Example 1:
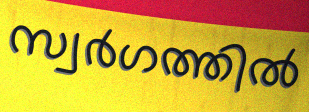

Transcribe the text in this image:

സ്വർഗത്തിൽ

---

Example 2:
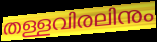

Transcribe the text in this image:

തള്ളവിരലിനും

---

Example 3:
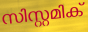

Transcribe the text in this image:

സിസ്റ്റമിക്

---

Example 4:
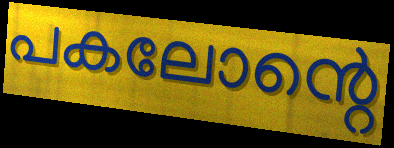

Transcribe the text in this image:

പകലോന്റെ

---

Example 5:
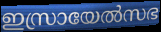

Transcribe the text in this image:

ഇസ്രായേൽസഭ